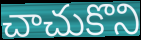
చాచుకొని